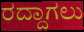
ರದ್ದಾಗಲು